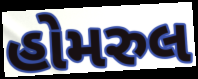
હોમરુલ